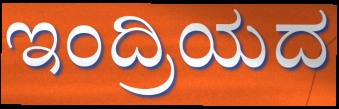
ಇಂದ್ರಿಯದ